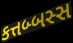
કત્તબ્બસ્સ